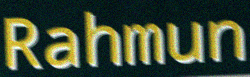
Rahmun